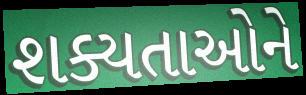
શક્યતાઓને